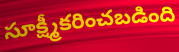
సూక్ష్మీకరించబడింది